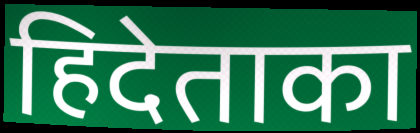
हिदेताका